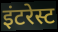
इंटरेस्ट